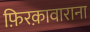
फ़िरक़ावाराना